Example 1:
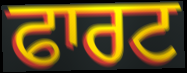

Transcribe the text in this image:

ਫਾਰਟ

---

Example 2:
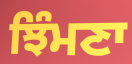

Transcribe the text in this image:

ਝਿੰਮਣਾ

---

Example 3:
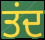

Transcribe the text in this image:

ਤਂਦ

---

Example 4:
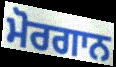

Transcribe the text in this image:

ਮੋਰਗਾਨ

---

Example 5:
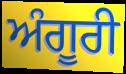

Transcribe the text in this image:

ਅੰਗੂਰੀ